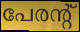
പേരന്റ്